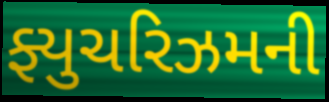
ફ્યુચરિઝમની